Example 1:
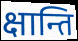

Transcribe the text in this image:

क्षान्ति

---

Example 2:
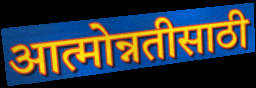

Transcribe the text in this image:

आत्मोन्नतीसाठी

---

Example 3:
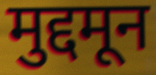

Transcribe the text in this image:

मुद्दमून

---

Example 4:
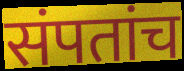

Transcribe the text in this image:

संपतांच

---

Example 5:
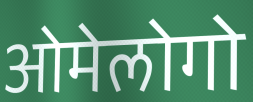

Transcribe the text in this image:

ओमेलोगो